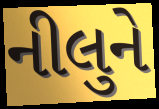
નીલુને